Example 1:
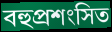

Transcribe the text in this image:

বহুপ্রশংসিত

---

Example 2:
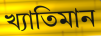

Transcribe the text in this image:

খ্যাতিমান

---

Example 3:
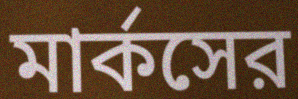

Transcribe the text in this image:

মার্কসের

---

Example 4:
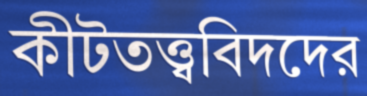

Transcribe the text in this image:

কীটতত্ত্ববিদদের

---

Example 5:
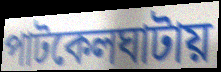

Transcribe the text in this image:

পাটকেলঘাটায়